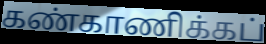
கண்காணிக்கப்